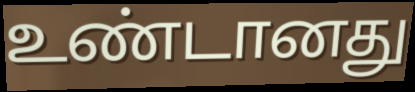
உண்டானது